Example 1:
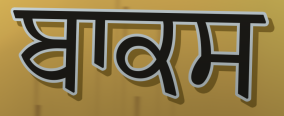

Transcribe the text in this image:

ਬਾਕਸ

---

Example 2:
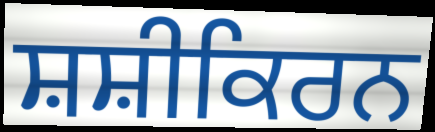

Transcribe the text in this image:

ਸ਼ਸ਼ੀਕਿਰਨ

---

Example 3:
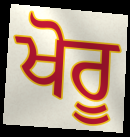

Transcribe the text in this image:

ਖੋਰੂ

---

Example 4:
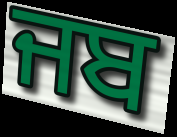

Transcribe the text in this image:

ਜਬ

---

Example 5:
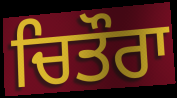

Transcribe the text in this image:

ਚਿਤੌਰਾ